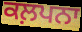
ਕਲ਼ਪਨਾ